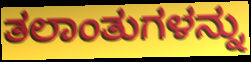
ತಲಾಂತುಗಳನ್ನು